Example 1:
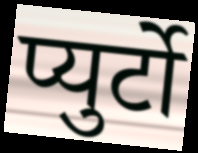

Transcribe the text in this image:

प्युर्टो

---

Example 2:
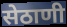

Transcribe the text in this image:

सेठाणी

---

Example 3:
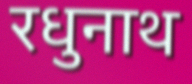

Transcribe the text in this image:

रधुनाथ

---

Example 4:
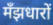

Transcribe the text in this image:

मँझधारों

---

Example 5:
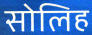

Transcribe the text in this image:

सोलिह